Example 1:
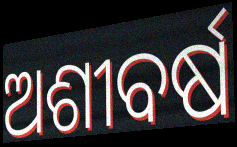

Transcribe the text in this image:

ଅଶୀବର୍ଷ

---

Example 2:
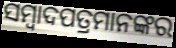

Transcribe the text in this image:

ସମ୍ୱାଦପତ୍ରମାନଙ୍କର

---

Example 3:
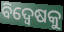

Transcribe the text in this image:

ବିଦ୍ବେଷକୁ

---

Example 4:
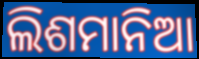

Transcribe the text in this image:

ଲିଶମାନିଆ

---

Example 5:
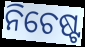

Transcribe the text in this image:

ନିଚେଷ୍ଟ